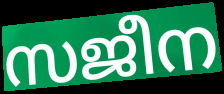
സജീന